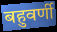
बहुवर्णी